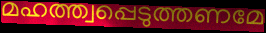
മഹത്ത്വപ്പെടുത്തണമേ